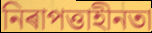
নিৰাপত্তাহীনতা